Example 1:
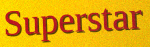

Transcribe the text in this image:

Superstar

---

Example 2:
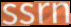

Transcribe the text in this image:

ssrn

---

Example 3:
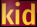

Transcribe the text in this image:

kid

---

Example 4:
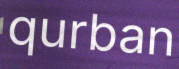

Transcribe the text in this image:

qurban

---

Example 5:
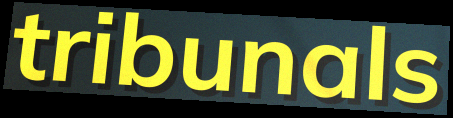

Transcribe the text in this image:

tribunals